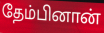
தேம்பினான்